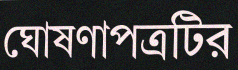
ঘোষণাপত্রটির